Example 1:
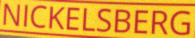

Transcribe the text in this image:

NICKELSBERG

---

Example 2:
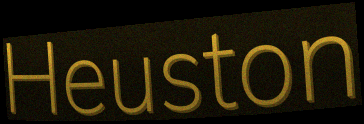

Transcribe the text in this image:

Heuston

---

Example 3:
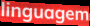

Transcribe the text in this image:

linguagem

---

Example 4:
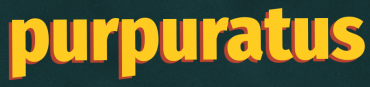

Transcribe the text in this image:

purpuratus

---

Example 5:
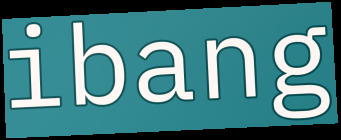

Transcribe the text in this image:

ibang